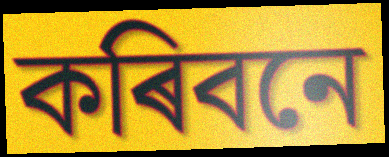
কৰিবনে